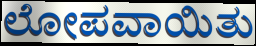
ಲೋಪವಾಯಿತು